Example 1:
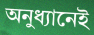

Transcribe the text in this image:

অনুধ্যানেই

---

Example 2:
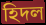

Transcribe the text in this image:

হিদল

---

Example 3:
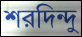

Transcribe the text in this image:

শরদিন্দু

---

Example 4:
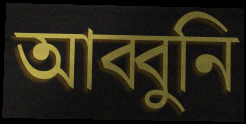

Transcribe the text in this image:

আব্বুনি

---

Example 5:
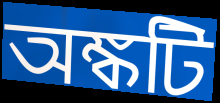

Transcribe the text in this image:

অঙ্কটি